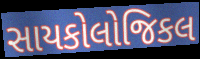
સાયકોલોજિકલ